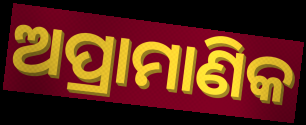
ଅପ୍ରାମାଣିକ